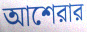
আশেরার